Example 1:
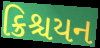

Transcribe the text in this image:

ક્રિશ્ચયન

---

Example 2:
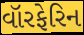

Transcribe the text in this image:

વૉરફેરિન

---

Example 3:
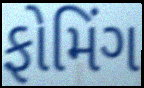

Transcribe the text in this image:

ફોમિંગ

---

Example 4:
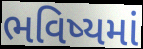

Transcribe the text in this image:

ભવિષ્યમાં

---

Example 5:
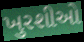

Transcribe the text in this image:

ખુરશીઓ